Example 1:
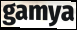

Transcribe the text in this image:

gamya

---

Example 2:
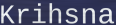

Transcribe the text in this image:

Krihsna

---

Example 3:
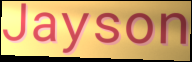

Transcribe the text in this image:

Jayson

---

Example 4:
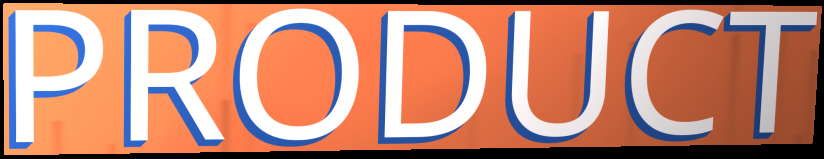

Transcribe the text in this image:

PRODUCT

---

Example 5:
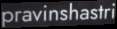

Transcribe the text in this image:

pravinshastri